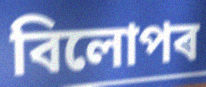
বিলোপৰ